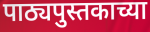
पाठ्यपुस्तकाच्या